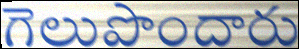
గెలుపొందారు